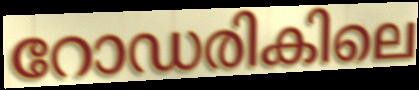
റോഡരികിലെ